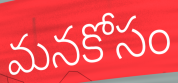
మనకోసం